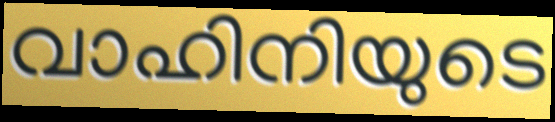
വാഹിനിയുടെ